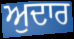
ਅੁਦਾਰ